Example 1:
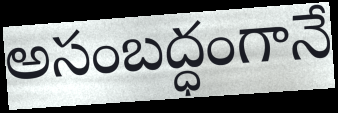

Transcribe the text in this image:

అసంబద్ధంగానే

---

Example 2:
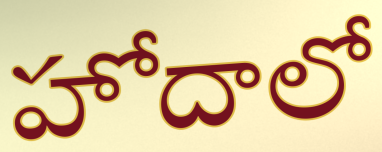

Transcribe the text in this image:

హోదాలో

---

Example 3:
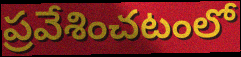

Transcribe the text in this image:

ప్రవేశించటంలో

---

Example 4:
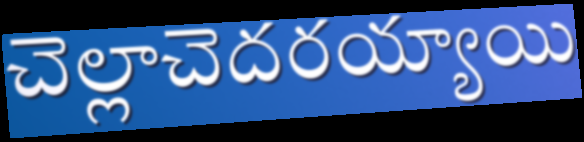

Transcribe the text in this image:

చెల్లాచెదరయ్యాయి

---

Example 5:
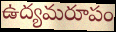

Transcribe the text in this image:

ఉద్యమరూపం